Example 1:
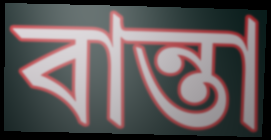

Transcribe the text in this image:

বান্তা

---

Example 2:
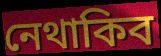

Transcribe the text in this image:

নেথাকিব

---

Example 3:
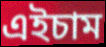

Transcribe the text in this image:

এইচাম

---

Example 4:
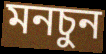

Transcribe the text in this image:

মনচুন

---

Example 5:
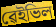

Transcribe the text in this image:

ৱেইভিল